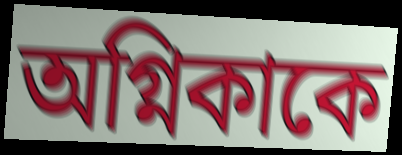
অগ্নিকাকে